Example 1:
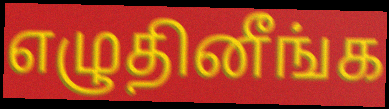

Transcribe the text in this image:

எழுதினீங்க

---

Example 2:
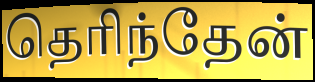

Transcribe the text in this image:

தெரிந்தேன்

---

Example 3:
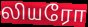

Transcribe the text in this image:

லியரோ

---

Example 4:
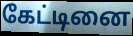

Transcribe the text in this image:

கேட்டினை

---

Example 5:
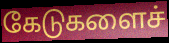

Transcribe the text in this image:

கேடுகளைச்